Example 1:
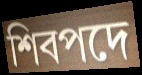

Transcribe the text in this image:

শিবপদে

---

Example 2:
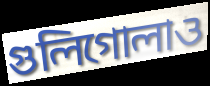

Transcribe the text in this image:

গুলিগোলাও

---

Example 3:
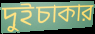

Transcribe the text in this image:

দুইচাকার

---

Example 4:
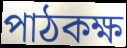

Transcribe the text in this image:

পাঠকক্ষ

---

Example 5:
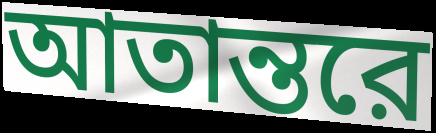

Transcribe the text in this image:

আতান্তরে